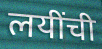
लयींची